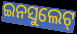
ଇନସୁଲେଟ୍